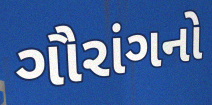
ગૌરાંગનો